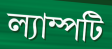
ল্যাম্পটি